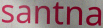
santna